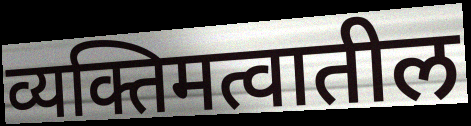
व्यक्तिमत्वातील